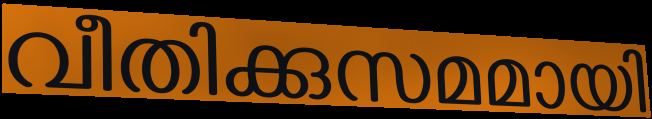
വീതിക്കുസമമായി